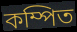
কম্পিত